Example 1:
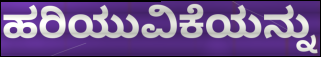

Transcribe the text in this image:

ಹರಿಯುವಿಕೆಯನ್ನು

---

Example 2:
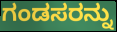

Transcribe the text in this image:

ಗಂಡಸರನ್ನು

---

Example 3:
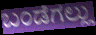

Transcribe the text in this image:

ಬಂಡೆಗಲ್ಲು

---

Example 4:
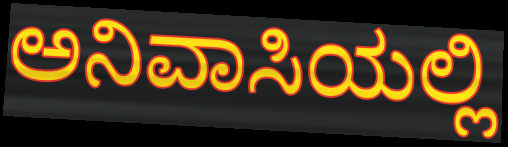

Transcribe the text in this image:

ಅನಿವಾಸಿಯಲ್ಲಿ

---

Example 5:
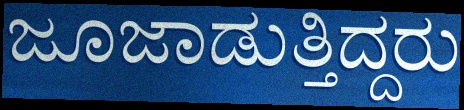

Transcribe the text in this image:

ಜೂಜಾಡುತ್ತಿದ್ದರು